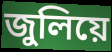
জুলিয়ে